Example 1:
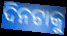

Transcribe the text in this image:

ଦିନଟାକୁ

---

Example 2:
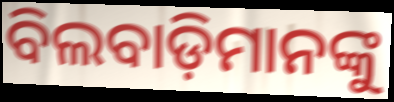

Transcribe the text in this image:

ବିଲବାଡ଼ିମାନଙ୍କୁ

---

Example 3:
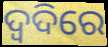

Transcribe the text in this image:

ଦ୍ଵଦିରେ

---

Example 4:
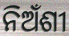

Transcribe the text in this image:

ନିଅଁଶୀ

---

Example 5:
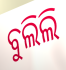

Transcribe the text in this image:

ବୁଲିଲି